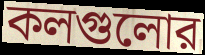
কলগুলোর